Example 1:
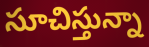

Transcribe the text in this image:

సూచిస్తున్నా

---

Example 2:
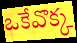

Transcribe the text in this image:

ఒకేవొక్క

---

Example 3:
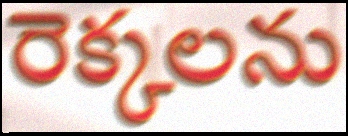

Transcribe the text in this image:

రెక్కలను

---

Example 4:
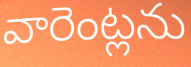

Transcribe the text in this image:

వారెంట్లను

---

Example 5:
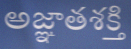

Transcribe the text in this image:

అజ్ఞాతశక్తి